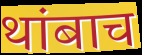
थांबाच